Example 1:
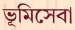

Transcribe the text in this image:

ভূমিসেবা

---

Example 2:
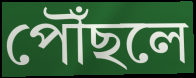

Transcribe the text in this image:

পৌঁছলে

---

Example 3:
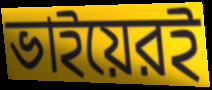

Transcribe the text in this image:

ভাইয়েরই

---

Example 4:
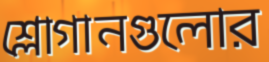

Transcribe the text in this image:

শ্লোগানগুলোর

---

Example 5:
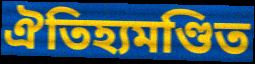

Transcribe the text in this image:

ঐতিহ্যমণ্ডিত